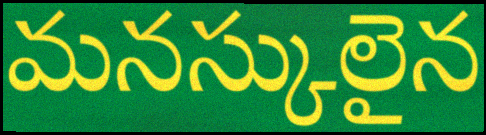
మనస్కులైన